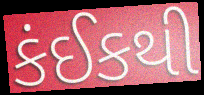
કંઈકથી